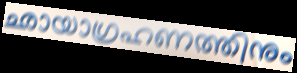
ഛായാഗ്രഹണത്തിനും